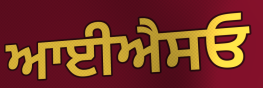
ਆਈਐਸਓ